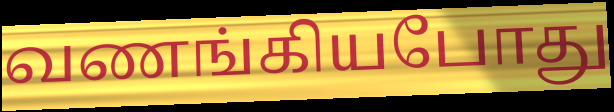
வணங்கியபோது